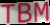
TBM